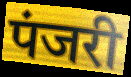
पंजरी